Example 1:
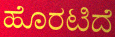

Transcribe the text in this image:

ಹೊರಟಿದೆ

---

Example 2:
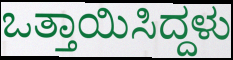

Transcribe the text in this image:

ಒತ್ತಾಯಿಸಿದ್ದಳು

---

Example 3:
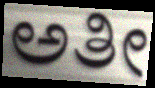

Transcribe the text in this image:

ಅತೀ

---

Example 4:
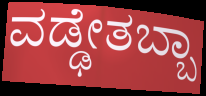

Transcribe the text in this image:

ವಡ್ಢೇತಬ್ಬಾ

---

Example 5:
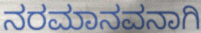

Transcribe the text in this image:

ನರಮಾನವನಾಗಿ